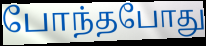
போந்தபோது